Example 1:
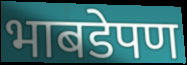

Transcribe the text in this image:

भाबडेपण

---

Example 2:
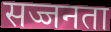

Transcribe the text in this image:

सज्जनता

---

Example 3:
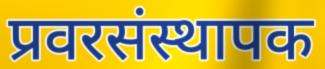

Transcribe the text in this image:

प्रवरसंस्थापक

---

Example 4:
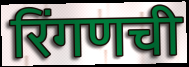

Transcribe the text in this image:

रिंगणची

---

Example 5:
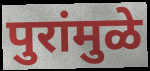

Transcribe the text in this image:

पुरांमुळे